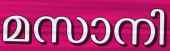
മസാനി